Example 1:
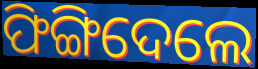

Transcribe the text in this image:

ଫିଙ୍ଗିଦେଲେ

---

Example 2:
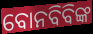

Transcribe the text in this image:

ବୋନବିବିଙ୍କ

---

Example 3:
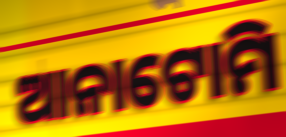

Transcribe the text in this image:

ଆନାଟୋମି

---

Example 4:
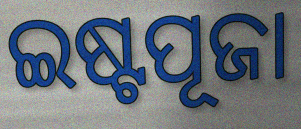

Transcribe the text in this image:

ଇଷ୍ଟପୂଜା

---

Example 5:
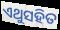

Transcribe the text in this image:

ଏଥୁସହିତ